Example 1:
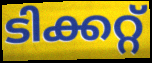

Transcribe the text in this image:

ടിക്കറ്റ്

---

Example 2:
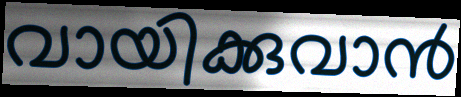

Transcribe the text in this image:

വായിക്കുവാൻ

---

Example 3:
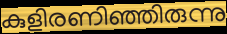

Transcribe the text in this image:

കുളിരണിഞ്ഞിരുന്നു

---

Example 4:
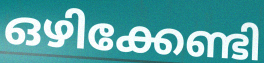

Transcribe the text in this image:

ഒഴിക്കേണ്ടി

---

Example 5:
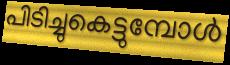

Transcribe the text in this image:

പിടിച്ചുകെട്ടുമ്പോൾ